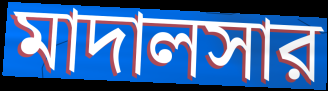
মাদালসার